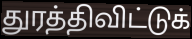
துரத்திவிட்டுக்